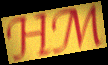
HM